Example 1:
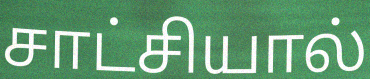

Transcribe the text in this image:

சாட்சியால்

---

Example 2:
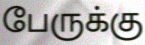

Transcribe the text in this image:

பேருக்கு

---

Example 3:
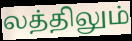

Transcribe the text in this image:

லத்திலும்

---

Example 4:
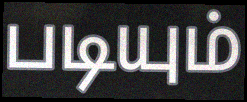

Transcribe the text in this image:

படியும்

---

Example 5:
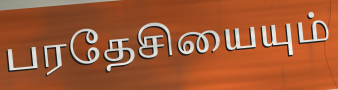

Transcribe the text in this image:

பரதேசியையும்